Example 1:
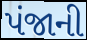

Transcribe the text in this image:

પંજાની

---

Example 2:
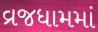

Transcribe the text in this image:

વ્રજધામમાં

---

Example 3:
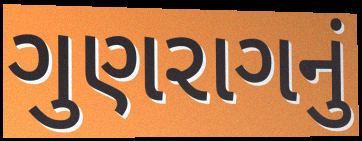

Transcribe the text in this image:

ગુણરાગનું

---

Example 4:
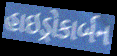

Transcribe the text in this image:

હાઇડ્રોકાર્બન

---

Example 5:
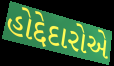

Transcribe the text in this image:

હોદ્દેદારોએ